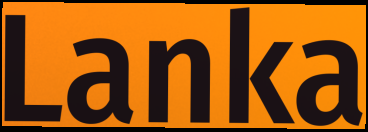
Lanka